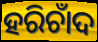
ହରିଚାଁଦ